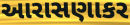
આરાસણાકર